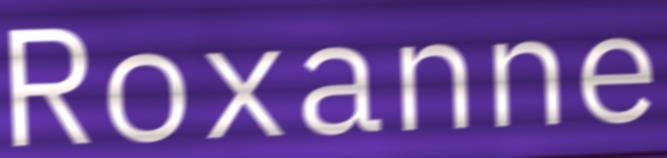
Roxanne